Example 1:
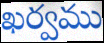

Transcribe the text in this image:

ఖర్వము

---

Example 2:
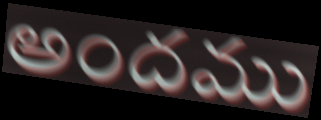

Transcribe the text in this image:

అందము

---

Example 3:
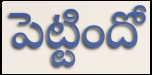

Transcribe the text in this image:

పెట్టిందో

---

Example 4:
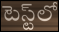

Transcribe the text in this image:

టెస్ట్‌లో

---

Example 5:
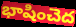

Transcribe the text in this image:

భాషించెద